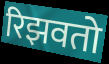
रिझवतो